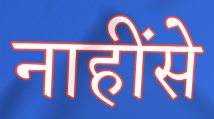
नाहींसे